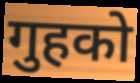
गुहको